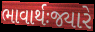
ભાવાર્થઃજ્યારે